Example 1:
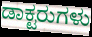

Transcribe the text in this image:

ಡಾಕ್ಟರುಗಳು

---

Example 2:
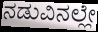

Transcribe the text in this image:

ನಡುವಿನಲ್ಲೇ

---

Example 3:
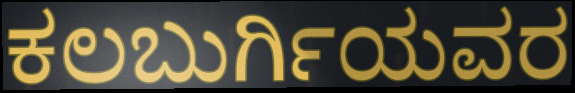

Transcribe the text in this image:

ಕಲಬುರ್ಗಿಯವರ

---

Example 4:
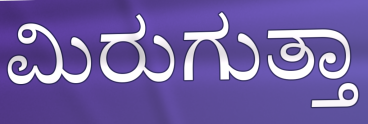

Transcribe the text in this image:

ಮಿರುಗುತ್ತಾ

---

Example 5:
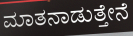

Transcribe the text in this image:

ಮಾತನಾಡುತ್ತೇನೆ